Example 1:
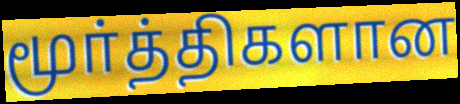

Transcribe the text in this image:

மூர்த்திகளான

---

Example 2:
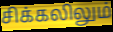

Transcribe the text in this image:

சிக்கலிலும்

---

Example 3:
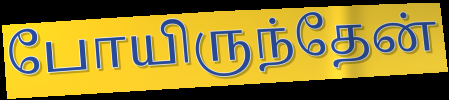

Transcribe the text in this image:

போயிருந்தேன்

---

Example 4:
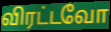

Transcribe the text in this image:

விரட்டவோ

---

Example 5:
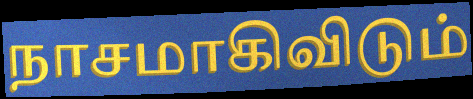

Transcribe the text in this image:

நாசமாகிவிடும்